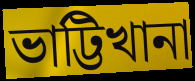
ভাট্টিখানা